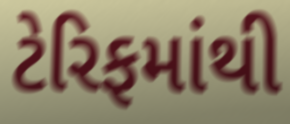
ટેરિફમાંથી